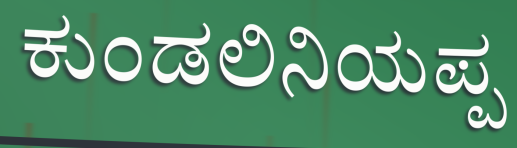
ಕುಂಡಲಿನಿಯಪ್ಪ